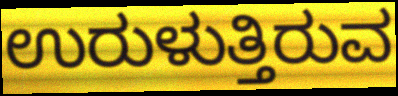
ಉರುಳುತ್ತಿರುವ